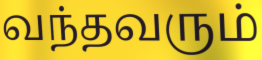
வந்தவரும்